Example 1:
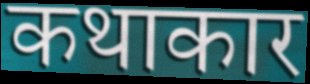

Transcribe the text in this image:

कथाकार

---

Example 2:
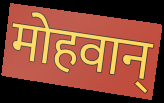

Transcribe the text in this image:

मोहवान्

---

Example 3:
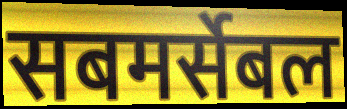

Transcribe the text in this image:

सबमर्सेबल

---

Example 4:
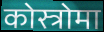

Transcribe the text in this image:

कोस्त्रोमा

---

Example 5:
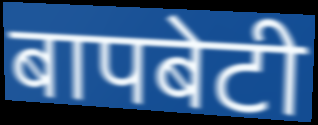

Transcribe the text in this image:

बापबेटी